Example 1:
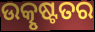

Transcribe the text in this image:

ଉତ୍କୃଷ୍ଟତର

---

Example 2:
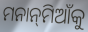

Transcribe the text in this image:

ମନାନ୍‌ମିଆଁକୁ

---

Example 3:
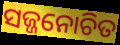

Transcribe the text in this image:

ସଜ୍ଜନୋଚିତ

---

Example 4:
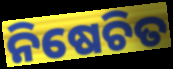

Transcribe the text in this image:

ନିଷେଚିତ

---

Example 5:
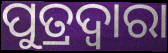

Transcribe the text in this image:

ପୁତ୍ରଦ୍ୱାରା